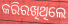
କରିରଖିଥିଲେ